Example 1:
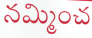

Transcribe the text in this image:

నమ్మించ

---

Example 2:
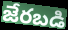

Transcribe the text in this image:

జేరబడి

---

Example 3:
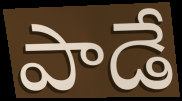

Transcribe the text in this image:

పాడే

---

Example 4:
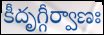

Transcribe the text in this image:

కీదృగ్గీర్వాణః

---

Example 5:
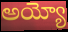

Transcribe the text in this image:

అయ్యో